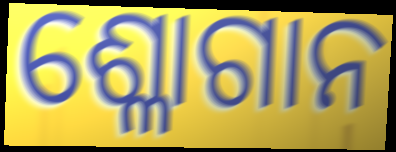
ଶ୍ଳୋଗାନ